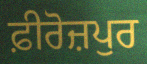
ਫ਼ੀਰੋਜ਼ਪੁਰ